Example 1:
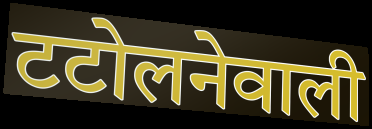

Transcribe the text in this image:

टटोलनेवाली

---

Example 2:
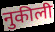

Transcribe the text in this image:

नुकीली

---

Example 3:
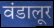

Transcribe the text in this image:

वंडालूर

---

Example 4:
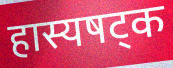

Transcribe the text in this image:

हास्यषट्क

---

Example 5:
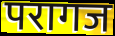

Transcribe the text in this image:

परागज